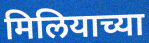
मिलियाच्या